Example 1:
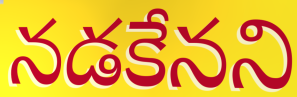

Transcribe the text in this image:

నడకేనని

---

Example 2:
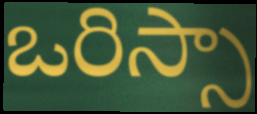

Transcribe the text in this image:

ఒరిస్సా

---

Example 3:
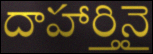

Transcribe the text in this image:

దాహార్తినై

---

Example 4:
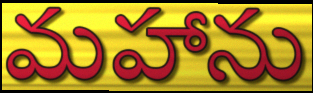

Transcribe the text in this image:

మహాను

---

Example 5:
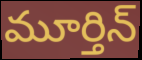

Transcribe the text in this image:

మూర్తిన్